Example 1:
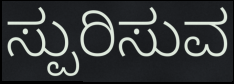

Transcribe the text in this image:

ಸ್ಪುರಿಸುವ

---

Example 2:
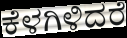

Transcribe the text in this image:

ಕೆಳಗಿಳಿದರೆ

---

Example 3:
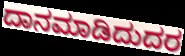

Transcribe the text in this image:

ದಾನಮಾಡಿದುದರ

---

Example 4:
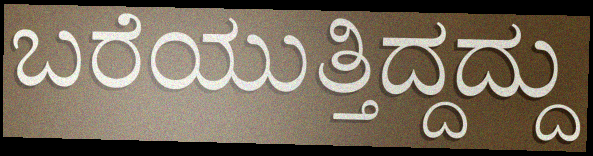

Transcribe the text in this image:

ಬರೆಯುತ್ತಿದ್ದದ್ದು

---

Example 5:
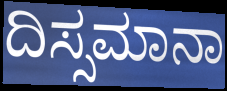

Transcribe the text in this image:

ದಿಸ್ಸಮಾನಾ